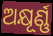
ଅକ୍ଷୂର୍ଣ୍ଣ